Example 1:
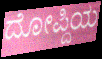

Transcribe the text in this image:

ದೋಪ್ದಿಯ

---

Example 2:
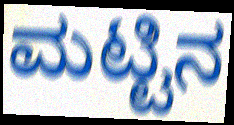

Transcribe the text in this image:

ಮಟ್ಟಿನ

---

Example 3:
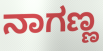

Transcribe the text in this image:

ನಾಗಣ್ಣ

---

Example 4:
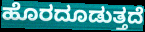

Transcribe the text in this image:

ಹೊರದೂಡುತ್ತದೆ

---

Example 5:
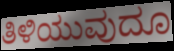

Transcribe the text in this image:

ತಿಳಿಯುವುದೂ